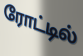
ரோட்டில்